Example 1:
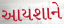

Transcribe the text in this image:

આયશાને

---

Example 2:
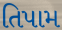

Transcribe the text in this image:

તિપામ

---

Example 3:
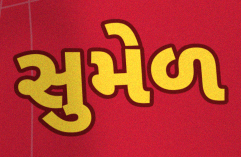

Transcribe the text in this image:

સુમેળ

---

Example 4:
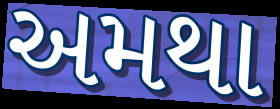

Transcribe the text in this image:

અમથા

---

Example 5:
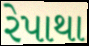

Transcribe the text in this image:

રેપાથા